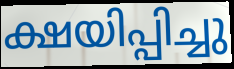
ക്ഷയിപ്പിച്ചു